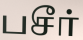
பசீர்